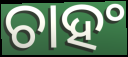
ଚାହଂ